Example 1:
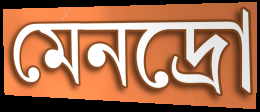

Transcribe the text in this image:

মেনদ্রো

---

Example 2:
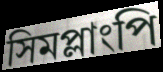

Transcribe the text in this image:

সিমপ্লাংপি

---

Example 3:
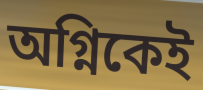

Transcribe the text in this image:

অগ্নিকেই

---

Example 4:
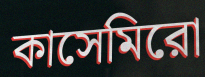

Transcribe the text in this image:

কাসেমিরো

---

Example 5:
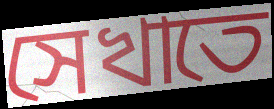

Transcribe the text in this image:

সেখাতে